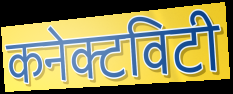
कनेक्टविटी